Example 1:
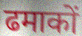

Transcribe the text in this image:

ढमाकों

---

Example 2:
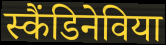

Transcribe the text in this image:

स्कैंडिनेविया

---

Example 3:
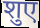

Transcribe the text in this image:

शुए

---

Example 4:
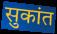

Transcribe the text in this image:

सुकांत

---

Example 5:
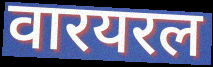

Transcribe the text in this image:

वारयरल